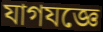
যাগযজ্ঞে